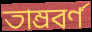
তাম্রবর্ণ